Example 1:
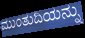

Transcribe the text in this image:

ಮುಂತುದಿಯನ್ನು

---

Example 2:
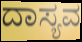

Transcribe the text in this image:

ದಾಸ್ಯವ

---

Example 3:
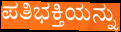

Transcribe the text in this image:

ಪತಿಭಕ್ತಿಯನ್ನು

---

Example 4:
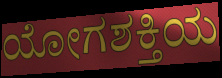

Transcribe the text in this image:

ಯೋಗಶಕ್ತಿಯ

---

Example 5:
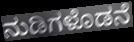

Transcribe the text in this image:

ನುಡಿಗಳೊಡನೆ